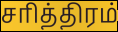
சரித்திரம்